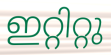
ഇറ്റിറ്റു